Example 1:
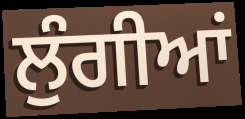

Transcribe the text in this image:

ਲੁੰਗੀਆਂ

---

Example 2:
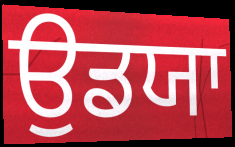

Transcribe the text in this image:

ਉਡਯਾ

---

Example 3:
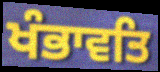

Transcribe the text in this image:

ਖੰਭਾਵਤਿ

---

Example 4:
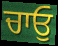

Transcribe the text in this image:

ਚਾਓੁ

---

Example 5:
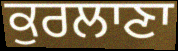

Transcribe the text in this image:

ਕੁਰਲਾਣਾ